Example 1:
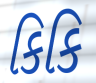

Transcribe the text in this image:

કિકિ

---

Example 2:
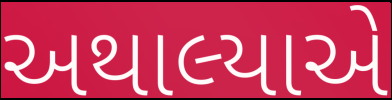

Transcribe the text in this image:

અથાલ્યાએ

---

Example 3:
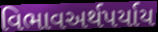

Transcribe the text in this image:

વિભાવઅર્થપર્યાય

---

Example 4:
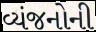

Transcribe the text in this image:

વ્યંજનોની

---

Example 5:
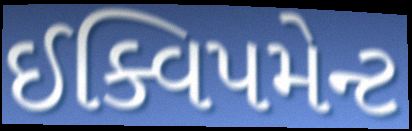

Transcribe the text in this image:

ઈક્વિપમેન્ટ